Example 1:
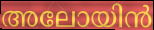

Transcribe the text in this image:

അലോയിൻ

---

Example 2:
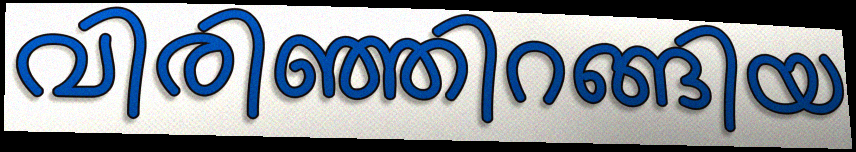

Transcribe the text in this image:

വിരിഞ്ഞിറങ്ങിയ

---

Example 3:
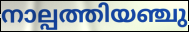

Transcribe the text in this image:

നാല്പത്തിയഞ്ചു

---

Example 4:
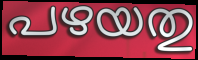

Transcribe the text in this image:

പഴയതു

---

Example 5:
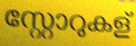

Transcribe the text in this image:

സ്റ്റോറുകള്